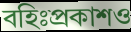
বহিঃপ্রকাশও